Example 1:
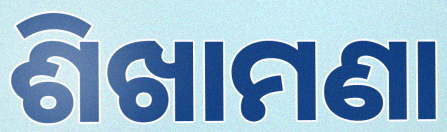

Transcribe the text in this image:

ଶିଖାମଣା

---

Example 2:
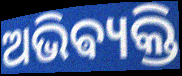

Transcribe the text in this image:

ଅଭିଵ୍ୟକ୍ତି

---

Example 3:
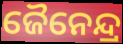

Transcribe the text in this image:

ଜୈନେନ୍ଦ୍ର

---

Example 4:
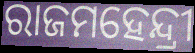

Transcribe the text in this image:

ରାଜମହେନ୍ଦ୍ରୀ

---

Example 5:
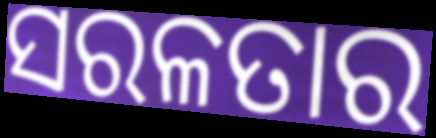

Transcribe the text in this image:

ସରଳତାର